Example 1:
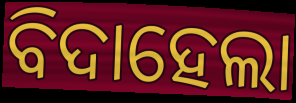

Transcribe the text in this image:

ବିଦାହେଲା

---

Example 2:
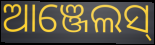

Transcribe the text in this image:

ଆଞ୍ଜେଲସ୍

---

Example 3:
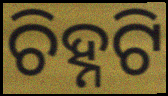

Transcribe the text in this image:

ଚିହ୍ନଟି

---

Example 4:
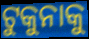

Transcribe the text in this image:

ଟୁକୁନାକୁ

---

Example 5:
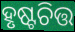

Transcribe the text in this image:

ହୃଷ୍ଟଚିତ୍ତ